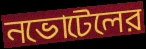
নভোটেলের